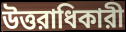
উত্তরাধিকারী